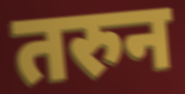
तरुन